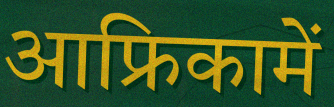
आफ्रिकामें